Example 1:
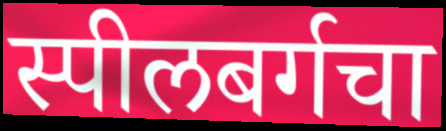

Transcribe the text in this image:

स्पीलबर्गचा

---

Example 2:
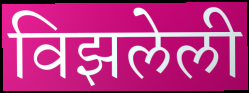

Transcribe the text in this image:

विझलेली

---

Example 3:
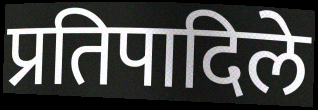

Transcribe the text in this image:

प्रतिपादिले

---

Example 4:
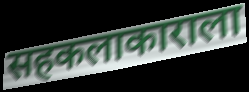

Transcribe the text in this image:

सहकलाकाराला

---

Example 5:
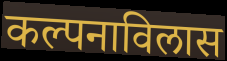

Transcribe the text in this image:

कल्पनाविलास